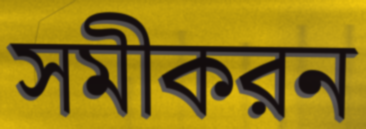
সমীকরন